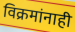
विक्रमांनाही